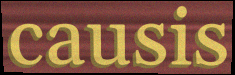
causis